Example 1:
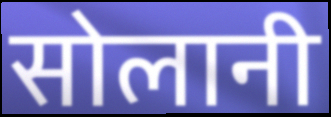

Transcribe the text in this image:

सोलानी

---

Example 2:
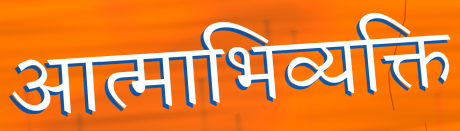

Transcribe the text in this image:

आत्माभिव्यक्ति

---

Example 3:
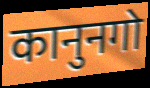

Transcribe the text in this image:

कानुनगो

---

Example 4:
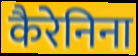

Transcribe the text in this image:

कैरेनिना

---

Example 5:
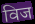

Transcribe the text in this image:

विज